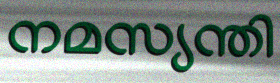
നമസ്യന്തി